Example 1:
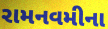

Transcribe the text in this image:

રામનવમીના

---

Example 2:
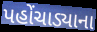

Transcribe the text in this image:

પહોંચાડ્યાના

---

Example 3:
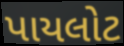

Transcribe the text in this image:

પાયલોટ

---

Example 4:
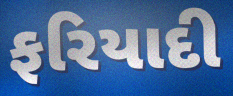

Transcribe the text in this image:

ફરિયાદી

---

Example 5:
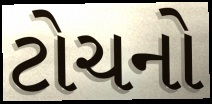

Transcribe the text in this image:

ટોચનો